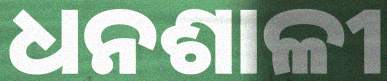
ଧନଶାଳୀ